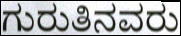
ಗುರುತಿನವರು